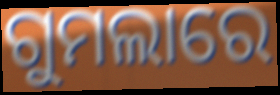
ଗୁମଲାରେ